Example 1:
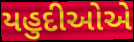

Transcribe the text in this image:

યહુદીઓએ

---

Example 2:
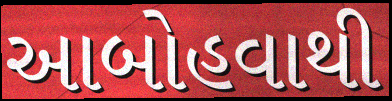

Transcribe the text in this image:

આબોહવાથી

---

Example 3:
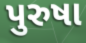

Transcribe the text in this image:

પુરુષા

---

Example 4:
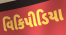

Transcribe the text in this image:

વિકિપીડિયા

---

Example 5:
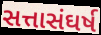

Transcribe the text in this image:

સત્તાસંઘર્ષ